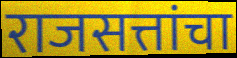
राजसत्तांचा